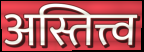
अस्तित्त्व